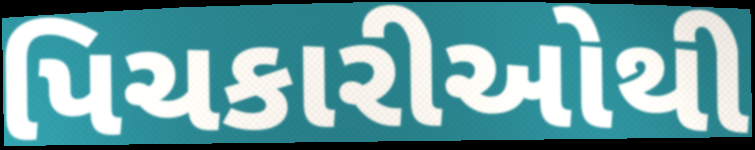
પિચકારીઓથી